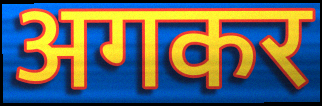
अगकर